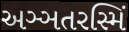
અઞ્ઞતરસ્મિં